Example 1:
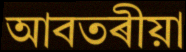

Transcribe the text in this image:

আবতৰীয়া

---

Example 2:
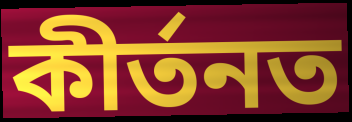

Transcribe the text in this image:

কীৰ্তনত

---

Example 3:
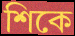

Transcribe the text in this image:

শিকে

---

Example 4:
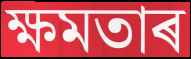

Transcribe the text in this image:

ক্ষমতাৰ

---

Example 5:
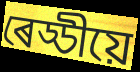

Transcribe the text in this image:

ৰেড্ডীয়ে